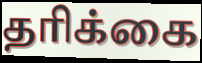
தரிக்கை